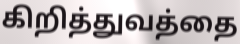
கிறித்துவத்தை